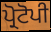
ਪ੍ਰੋਟੋਪੀ